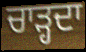
ਚਾੜ੍ਹਦਾ